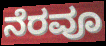
ನೆರವೂ